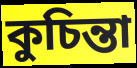
কুচিন্তা